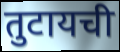
तुटायची